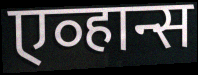
एव्हान्स